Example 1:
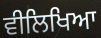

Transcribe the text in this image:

ਵੀਲਿਖਿਆ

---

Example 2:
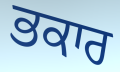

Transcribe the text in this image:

ਭਕਾਰ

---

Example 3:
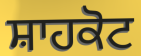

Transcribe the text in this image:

ਸ਼ਾਹਕੋਟ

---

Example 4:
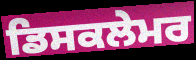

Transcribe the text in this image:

ਡਿਸਕਲੇਮਰ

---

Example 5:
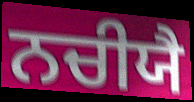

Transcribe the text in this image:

ਨਚੀਯੈ